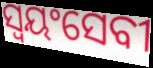
ସ୍ୱୟଂସେବୀ